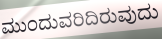
ಮುಂದುವರಿದಿರುವುದು